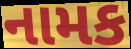
નામક